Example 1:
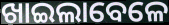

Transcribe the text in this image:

ଖାଇଲାବେଳେ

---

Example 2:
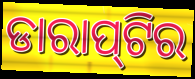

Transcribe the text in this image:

ଡାରାପ୍‌ଟିର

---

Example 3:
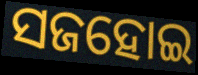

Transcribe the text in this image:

ସଜହୋଇ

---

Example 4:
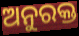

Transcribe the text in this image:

ଅନୁରକ୍ତ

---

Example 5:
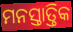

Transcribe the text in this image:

ମନସ୍ତାତ୍ତିକ